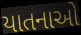
યાતનાઓ